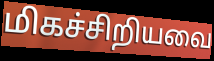
மிகச்சிறியவை